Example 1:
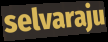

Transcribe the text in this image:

selvaraju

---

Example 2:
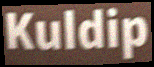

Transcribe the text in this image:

Kuldip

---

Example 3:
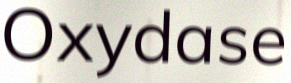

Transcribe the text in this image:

Oxydase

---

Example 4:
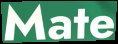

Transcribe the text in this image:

Mate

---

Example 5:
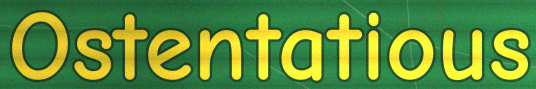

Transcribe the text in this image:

Ostentatious